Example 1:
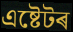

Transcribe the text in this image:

এষ্টেটৰ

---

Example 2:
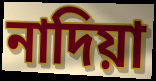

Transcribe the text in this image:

নাদিয়া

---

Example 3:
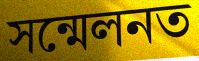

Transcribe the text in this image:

সন্মেলনত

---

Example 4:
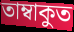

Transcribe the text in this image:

তাম্বাকুত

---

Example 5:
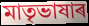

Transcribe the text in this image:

মাতৃভাষাৰ